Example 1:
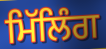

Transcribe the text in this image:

ਮਿੱਲਿੰਗ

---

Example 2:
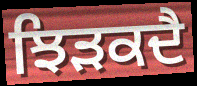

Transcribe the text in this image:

ਝਿੜਕਦੈ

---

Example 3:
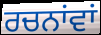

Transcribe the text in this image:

ਰਚਨਾਂਵਾਂ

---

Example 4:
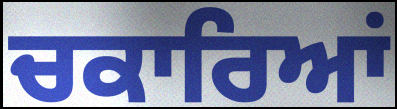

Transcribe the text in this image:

ਚਕਾਰਿਆਂ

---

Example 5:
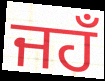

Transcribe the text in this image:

ਜਹਁ